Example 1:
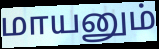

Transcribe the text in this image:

மாயனும்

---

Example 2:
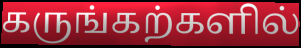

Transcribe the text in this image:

கருங்கற்களில்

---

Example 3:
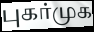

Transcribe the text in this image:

புகர்முக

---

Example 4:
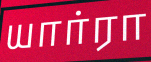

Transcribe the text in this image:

யார்ரா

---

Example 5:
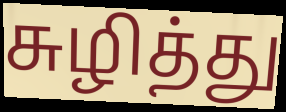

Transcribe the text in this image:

சுழித்து